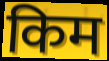
किम